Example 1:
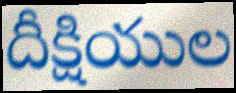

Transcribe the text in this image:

దీక్షియుల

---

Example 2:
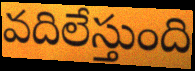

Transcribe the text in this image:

వదిలేస్తుంది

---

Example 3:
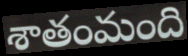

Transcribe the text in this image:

శాతంమంది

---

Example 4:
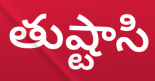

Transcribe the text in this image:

తుష్టాసి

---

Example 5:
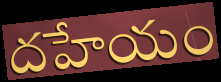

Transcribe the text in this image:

దహేయం